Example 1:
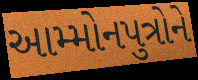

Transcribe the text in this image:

આમ્મોનપુત્રોને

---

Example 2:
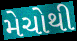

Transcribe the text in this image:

મેચોથી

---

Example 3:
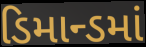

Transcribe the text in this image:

ડિમાન્ડમાં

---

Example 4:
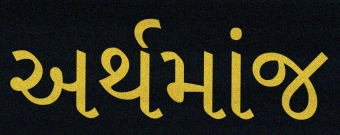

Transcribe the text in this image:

અર્થમાંજ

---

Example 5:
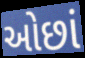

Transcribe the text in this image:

ઓછાં